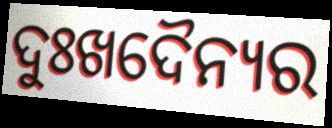
ଦୁଃଖଦୈନ୍ୟର